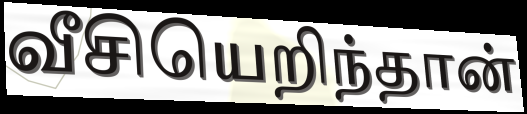
வீசியெறிந்தான்